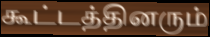
கூட்டத்தினரும்